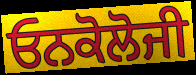
ਓਨਕੋਲੋਜੀ